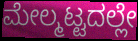
ಮೇಲ್ಮಟ್ಟದಲ್ಲೇ